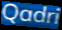
Qadri